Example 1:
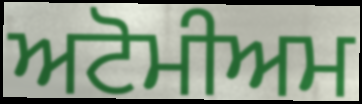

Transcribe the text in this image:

ਅਟੋਮੀਅਮ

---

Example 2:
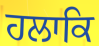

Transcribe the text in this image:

ਹਲਾਕਿ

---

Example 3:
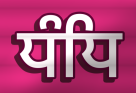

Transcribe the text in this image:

ਧੰਧਿ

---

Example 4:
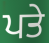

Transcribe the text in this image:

ਪਤੇ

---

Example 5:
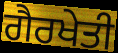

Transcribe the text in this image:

ਗੈਰਖੇਤੀ